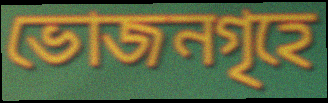
ভোজনগৃহে